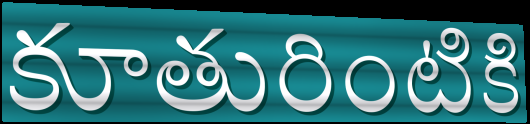
కూతురింటికి